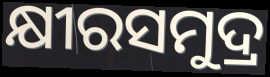
କ୍ଷୀରସମୁଦ୍ର